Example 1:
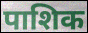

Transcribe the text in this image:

पाशिक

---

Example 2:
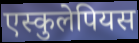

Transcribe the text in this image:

एस्कुलेपियस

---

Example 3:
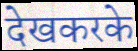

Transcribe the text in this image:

देखकरके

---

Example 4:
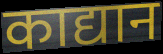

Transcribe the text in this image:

काद्यान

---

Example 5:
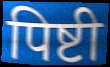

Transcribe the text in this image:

पिष्टी